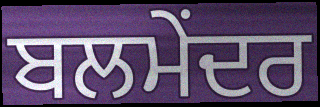
ਬਲਮੇਂਦਰ